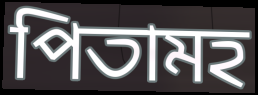
পিতামহ